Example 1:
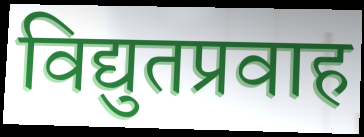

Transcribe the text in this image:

विद्युतप्रवाह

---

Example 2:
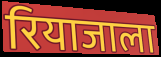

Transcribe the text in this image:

रियाजाला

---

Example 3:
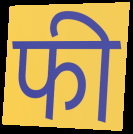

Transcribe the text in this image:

फी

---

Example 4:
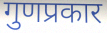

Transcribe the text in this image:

गुणप्रकार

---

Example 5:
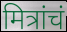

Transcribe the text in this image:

मित्रांचं